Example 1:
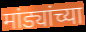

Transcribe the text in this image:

मांड्यांच्या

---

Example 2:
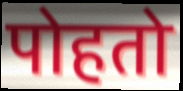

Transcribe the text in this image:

पोहतो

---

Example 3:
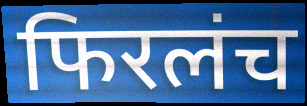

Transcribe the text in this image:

फिरलंच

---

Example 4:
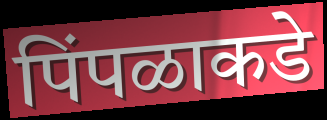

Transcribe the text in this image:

पिंपळाकडे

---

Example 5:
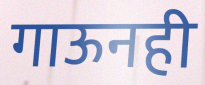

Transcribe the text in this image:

गाऊनही